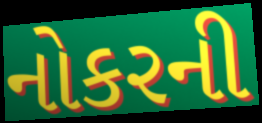
નોકરની